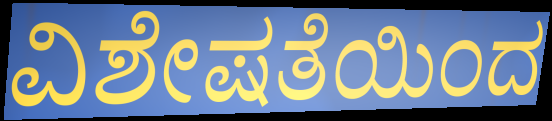
ವಿಶೇಷತೆಯಿಂದ